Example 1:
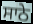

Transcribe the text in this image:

ਸਾਠੇ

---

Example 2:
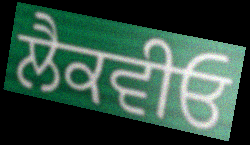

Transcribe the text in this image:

ਲੈਕਵੀਓ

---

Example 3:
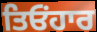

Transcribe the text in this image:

ਤਿਓਂਹਾਰ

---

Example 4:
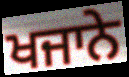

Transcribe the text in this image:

ਖਜਾਨੇ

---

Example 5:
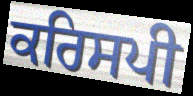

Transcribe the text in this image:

ਕਰਿਸਪੀ